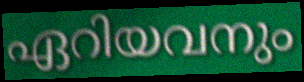
ഏറിയവനും